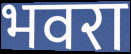
भवरा